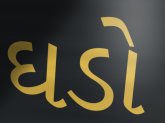
ઘડો